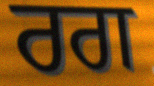
ਰਗ